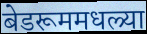
बेडरूममधल्या